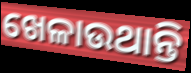
ଖେଳାଉଥାନ୍ତି